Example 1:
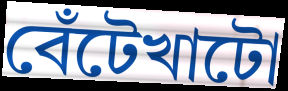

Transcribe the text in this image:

বেঁটেখাটো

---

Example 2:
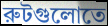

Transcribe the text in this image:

রুটগুলোতে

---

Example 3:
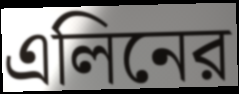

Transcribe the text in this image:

এলিনের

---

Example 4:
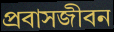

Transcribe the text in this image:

প্রবাসজীবন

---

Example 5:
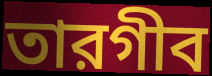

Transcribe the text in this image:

তারগীব